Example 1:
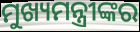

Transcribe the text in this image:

ମୁଖ୍ୟମନ୍ତ୍ରୀଙ୍କର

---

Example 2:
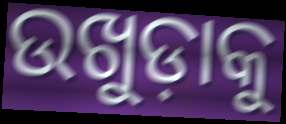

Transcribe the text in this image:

ଉଖୁଡ଼ାକୁ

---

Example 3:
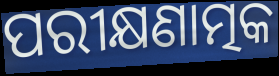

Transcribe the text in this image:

ପରୀକ୍ଷଣାତ୍ମକ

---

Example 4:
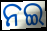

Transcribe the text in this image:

ନଇ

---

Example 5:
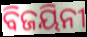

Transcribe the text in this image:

ବିଜୟିନୀ